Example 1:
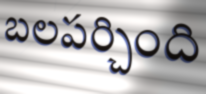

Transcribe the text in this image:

బలపర్చింది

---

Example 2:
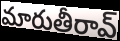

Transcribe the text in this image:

మారుతీరావ్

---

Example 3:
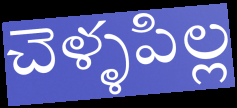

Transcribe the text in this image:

చెళ్ళపిల్ల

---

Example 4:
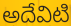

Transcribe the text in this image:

అదేవిటి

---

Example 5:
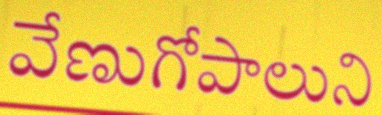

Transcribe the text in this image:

వేణుగోపాలుని